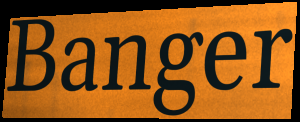
Banger